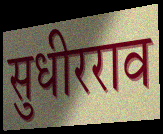
सुधीरराव